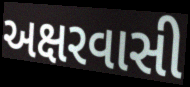
અક્ષરવાસી